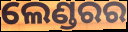
ଲେଣ୍ଡରର